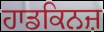
ਹਾਡਕਿਨਜ਼